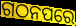
ଗଠନପରେ